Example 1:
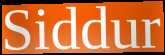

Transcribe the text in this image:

Siddur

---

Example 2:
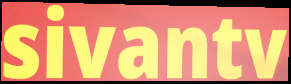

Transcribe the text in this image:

sivantv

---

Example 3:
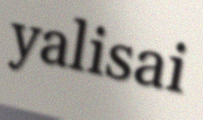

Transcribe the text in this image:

yalisai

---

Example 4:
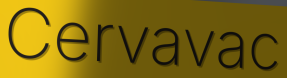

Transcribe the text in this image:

Cervavac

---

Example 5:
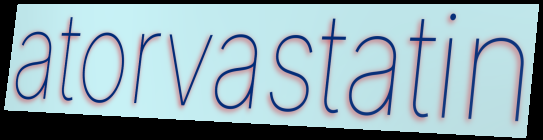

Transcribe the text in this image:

atorvastatin